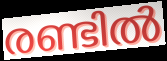
രണ്ടിൽ